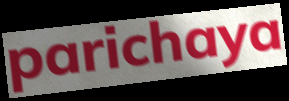
parichaya